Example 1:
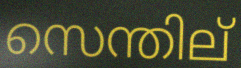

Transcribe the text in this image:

സെന്തില്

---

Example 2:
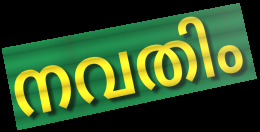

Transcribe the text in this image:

നവതിം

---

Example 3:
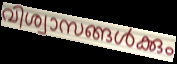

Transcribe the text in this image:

വിശ്വാസങ്ങൾക്കും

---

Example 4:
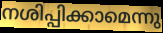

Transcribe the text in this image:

നശിപ്പിക്കാമെന്നു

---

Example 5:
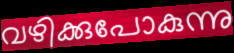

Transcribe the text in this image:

വഴിക്കുപോകുന്നു